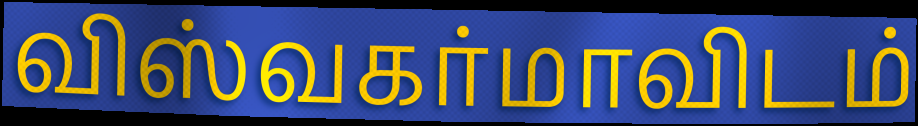
விஸ்வகர்மாவிடம்